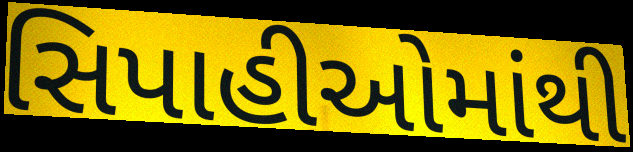
સિપાહીઓમાંથી